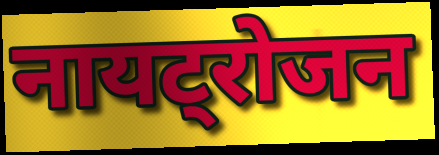
नायट्रोजन